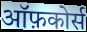
ऑफ़कोर्स